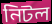
নিটল